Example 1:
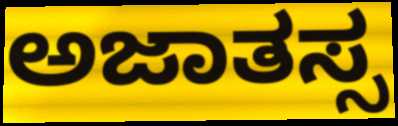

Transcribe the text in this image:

ಅಜಾತಸ್ಸ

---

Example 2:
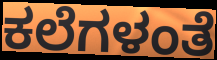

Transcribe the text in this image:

ಕಲೆಗಳಂತೆ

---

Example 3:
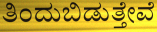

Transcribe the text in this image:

ತಿಂದುಬಿಡುತ್ತೇವೆ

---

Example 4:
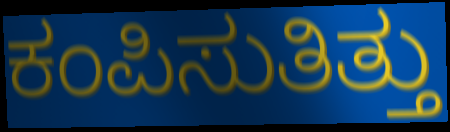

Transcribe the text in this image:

ಕಂಪಿಸುತಿತ್ತು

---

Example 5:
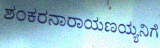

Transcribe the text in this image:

ಶಂಕರನಾರಾಯಣಯ್ಯನಿಗೆ